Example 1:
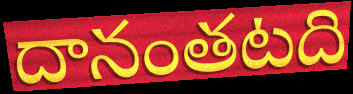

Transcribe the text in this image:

దానంతటది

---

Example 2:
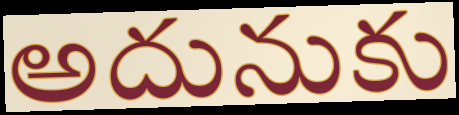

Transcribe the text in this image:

అదునుకు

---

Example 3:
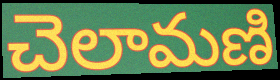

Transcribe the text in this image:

చెలామణి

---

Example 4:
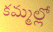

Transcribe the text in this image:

కమ్మల్లో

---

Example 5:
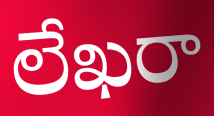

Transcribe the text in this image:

లేఖరా